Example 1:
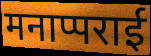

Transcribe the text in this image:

मनाप्पराई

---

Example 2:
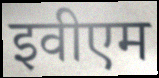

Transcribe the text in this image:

इवीएम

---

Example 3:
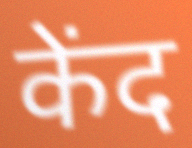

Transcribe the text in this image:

केंद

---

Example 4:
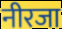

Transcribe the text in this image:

नीरजा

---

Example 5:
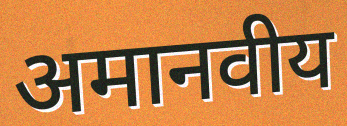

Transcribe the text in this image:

अमानवीय